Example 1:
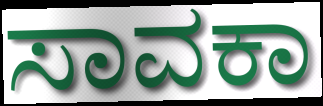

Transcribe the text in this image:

ಸಾವಕಾ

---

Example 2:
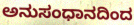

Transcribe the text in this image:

ಅನುಸಂಧಾನದಿಂದ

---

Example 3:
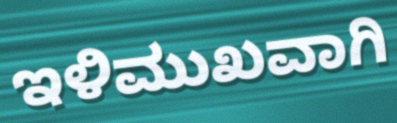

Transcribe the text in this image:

ಇಳಿಮುಖವಾಗಿ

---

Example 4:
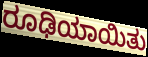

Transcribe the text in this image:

ರೂಢಿಯಾಯಿತು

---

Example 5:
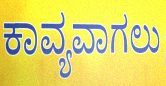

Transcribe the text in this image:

ಕಾವ್ಯವಾಗಲು